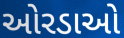
ઓરડાઓ